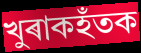
খুৰাকহঁতক